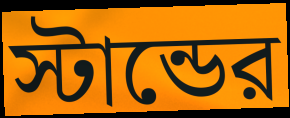
স্টান্ডের